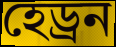
হেড্ৰন